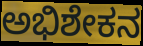
ಅಭಿಶೇಕನ